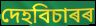
দেহবিচাৰৰ